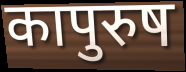
कापुरुष